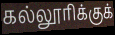
கல்லூரிக்குக்